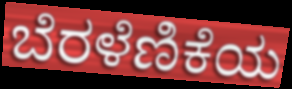
ಬೆರಳೆಣಿಕೆಯ